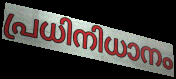
പ്രധിനിധാനം